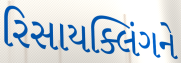
રિસાયક્લિંગને